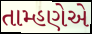
તામ્હણેએ